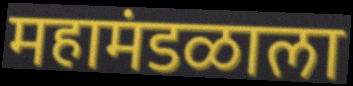
महामंडळाला